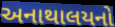
અનાથાલયનો